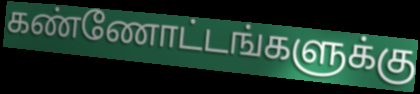
கண்ணோட்டங்களுக்கு